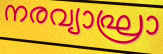
നരവ്യാഘ്രാ